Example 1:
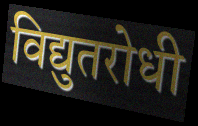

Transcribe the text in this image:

विद्युतरोधी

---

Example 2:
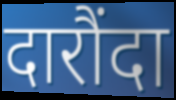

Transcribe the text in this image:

दारौंदा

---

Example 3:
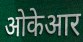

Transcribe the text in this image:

ओकेआर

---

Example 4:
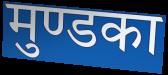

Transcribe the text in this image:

मुण्डका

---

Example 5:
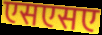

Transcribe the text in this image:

एसएसए